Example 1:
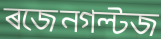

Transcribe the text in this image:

ৰজেনগল্টজ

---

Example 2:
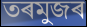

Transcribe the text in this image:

তৰমুজৰ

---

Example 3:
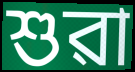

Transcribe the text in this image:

শুৱা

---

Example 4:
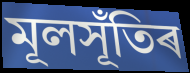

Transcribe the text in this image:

মূলসূঁতিৰ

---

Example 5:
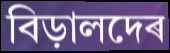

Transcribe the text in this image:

বিড়ালদেৰ